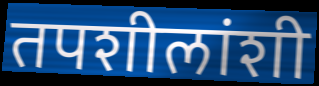
तपशीलांशी